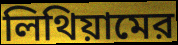
লিথিয়ামের